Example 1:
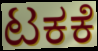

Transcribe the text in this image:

ಟಕಕೆ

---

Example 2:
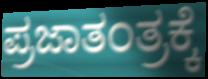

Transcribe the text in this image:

ಪ್ರಜಾತಂತ್ರಕ್ಕೆ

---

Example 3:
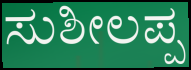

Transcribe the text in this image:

ಸುಶೀಲಪ್ಪ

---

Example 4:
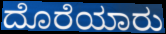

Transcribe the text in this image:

ದೊರೆಯಾರು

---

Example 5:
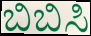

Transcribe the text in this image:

ಬಿಬಿಸಿ